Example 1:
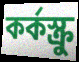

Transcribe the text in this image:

কর্কস্ক্রু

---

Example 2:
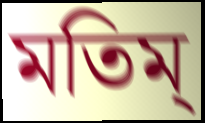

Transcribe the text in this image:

মতিম্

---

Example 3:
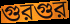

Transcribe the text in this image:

গুরগুর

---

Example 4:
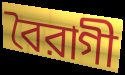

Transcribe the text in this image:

বৈরাগী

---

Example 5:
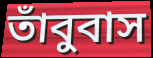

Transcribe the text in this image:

তাঁবুবাস